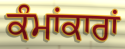
ਕੰਮਾਂਕਾਰਾਂ